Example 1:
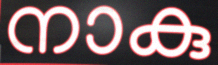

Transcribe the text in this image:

നാകു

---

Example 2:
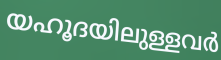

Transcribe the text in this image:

യഹൂദയിലുള്ളവർ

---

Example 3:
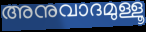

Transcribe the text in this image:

അനുവാദമുള്ളൂ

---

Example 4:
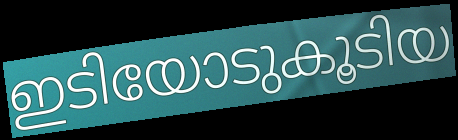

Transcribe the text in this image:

ഇടിയോടുകൂടിയ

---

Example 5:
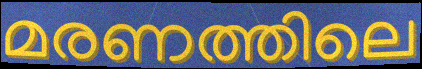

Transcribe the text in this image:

മരണത്തിലെ